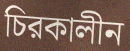
চিরকালীন